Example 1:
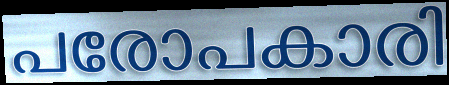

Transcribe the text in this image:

പരോപകാരി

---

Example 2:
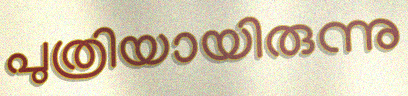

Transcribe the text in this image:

പുത്രിയായിരുന്നു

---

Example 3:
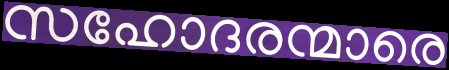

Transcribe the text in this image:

സഹോദരന്മാരെ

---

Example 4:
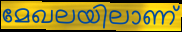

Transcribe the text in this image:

മേഖലയിലാണ്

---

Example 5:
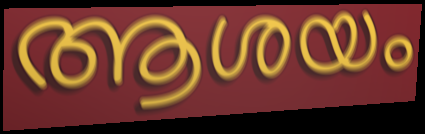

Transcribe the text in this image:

ആശയം